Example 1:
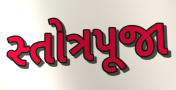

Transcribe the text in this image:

સ્તોત્રપૂજા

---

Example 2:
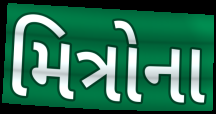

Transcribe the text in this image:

મિત્રોના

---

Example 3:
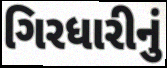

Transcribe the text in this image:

ગિરધારીનું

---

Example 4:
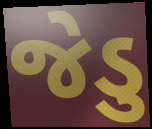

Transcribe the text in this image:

જેડુ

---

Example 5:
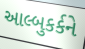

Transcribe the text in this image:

આલ્બુકર્કને